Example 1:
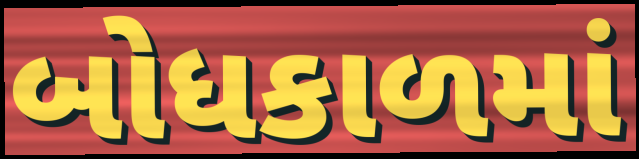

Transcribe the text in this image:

બોધકાળમાં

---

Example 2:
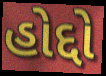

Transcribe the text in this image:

હોદ્દો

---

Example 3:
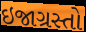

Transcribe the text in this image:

ઇજાગ્રસ્તો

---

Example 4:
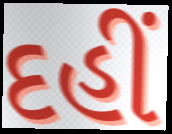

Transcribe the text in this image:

દહીં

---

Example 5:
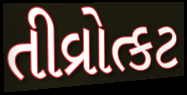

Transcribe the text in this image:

તીવ્રોત્કટ